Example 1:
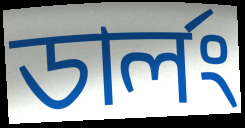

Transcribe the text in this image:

ডার্লং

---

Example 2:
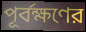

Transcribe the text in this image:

পূর্বক্ষণের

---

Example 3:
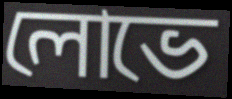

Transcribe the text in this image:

লোভে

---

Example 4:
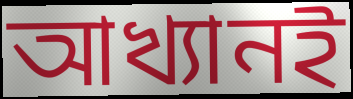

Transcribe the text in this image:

আখ্যানই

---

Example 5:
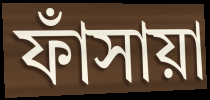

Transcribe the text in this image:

ফাঁসায়া